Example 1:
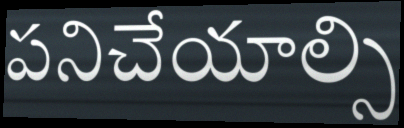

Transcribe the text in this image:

పనిచేయాల్సి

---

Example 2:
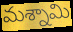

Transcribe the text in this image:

మశ్నామి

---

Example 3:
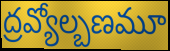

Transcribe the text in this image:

ద్రవ్యోల్బణమూ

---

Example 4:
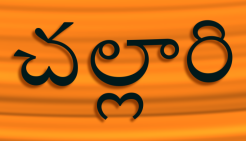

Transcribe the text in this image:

చల్లారి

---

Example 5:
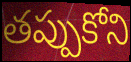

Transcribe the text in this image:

తప్పుకోని